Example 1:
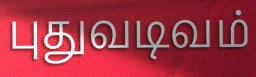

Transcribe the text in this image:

புதுவடிவம்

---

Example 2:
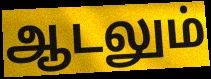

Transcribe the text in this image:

ஆடலும்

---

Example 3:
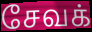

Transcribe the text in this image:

சேவக்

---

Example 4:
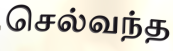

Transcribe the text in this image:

செல்வந்த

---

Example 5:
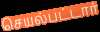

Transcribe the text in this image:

செயல்பட்டார்